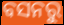
ବସନରୁ